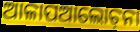
ଆଳାପଆଲୋଚ଼ନା